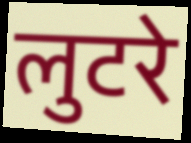
लुटरे